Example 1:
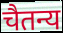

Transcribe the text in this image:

चैतन्य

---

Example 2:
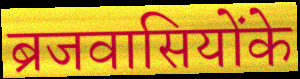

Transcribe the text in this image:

ब्रजवासियोंके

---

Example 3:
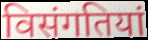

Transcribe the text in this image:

विसंगतियां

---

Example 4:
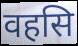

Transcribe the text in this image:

वहसि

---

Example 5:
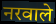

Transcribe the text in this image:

नरवाले